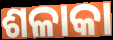
ଶଳାକା